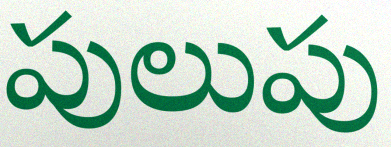
పులుపు